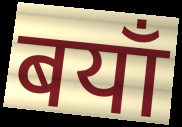
बयाँ